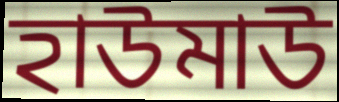
হাউমাউ